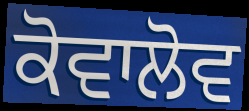
ਕੋਵਾਲੋਵ